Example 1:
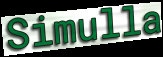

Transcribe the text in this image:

Simulla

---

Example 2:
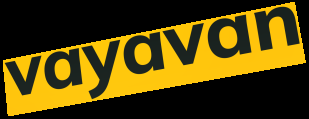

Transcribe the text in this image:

vayavan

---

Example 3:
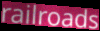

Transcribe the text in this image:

railroads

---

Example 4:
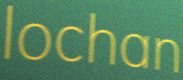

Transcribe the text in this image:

lochan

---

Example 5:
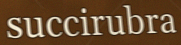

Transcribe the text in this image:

succirubra